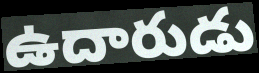
ఉదారుడు